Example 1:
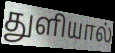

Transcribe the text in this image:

துளியால்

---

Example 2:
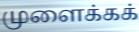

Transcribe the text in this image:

முளைக்கக்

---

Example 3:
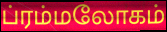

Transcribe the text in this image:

ப்ரம்மலோகம்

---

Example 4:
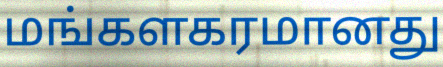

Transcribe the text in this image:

மங்களகரமானது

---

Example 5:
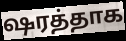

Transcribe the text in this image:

ஷரத்தாக